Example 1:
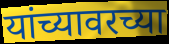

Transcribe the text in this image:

यांच्यावरच्या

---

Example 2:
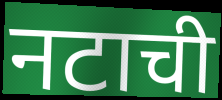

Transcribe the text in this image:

नटाची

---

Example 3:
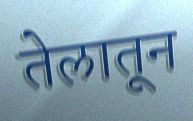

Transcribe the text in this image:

तेलातून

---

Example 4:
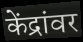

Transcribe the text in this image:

केंद्रांवर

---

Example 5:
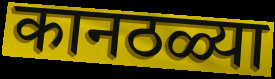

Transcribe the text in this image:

कानठळ्या